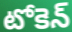
టోకెన్